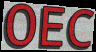
OEC